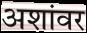
अशांवर